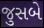
જુસબે